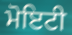
ਮੋਇਟੀ